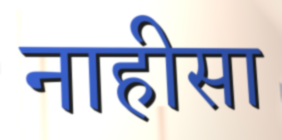
नाहीसा